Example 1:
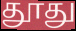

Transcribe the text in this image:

தூது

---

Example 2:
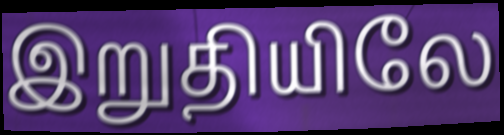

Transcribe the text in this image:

இறுதியிலே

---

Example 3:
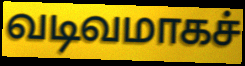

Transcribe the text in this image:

வடிவமாகச்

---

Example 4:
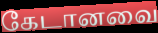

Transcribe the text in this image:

கேடானவை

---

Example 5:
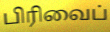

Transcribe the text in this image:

பிரிவைப்